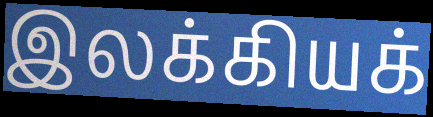
இலக்கியக்